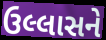
ઉલ્લાસને